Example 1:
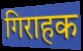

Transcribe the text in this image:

गिराहक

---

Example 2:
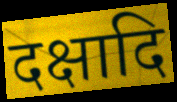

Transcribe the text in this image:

दक्षादि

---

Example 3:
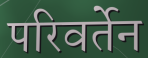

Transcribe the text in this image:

परिवर्तेन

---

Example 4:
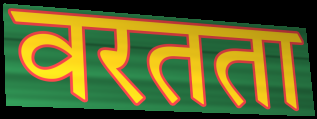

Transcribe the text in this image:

वरतता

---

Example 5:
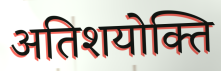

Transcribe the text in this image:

अतिशयोक्ति